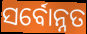
ସର୍ବୋନ୍ନତ